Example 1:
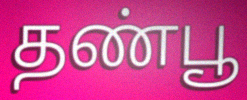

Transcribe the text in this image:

தண்பூ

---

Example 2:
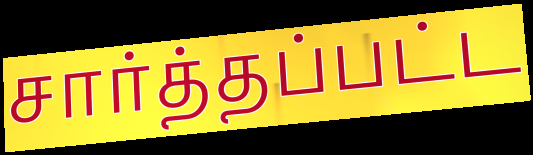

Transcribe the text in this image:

சார்த்தப்பட்ட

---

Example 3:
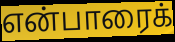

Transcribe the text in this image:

என்பாரைக்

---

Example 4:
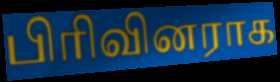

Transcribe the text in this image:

பிரிவினராக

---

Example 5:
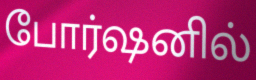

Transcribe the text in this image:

போர்ஷனில்